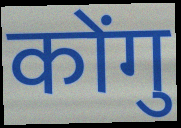
कोंगु